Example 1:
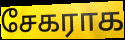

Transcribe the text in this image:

சேகராக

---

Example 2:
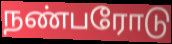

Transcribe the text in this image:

நண்பரோடு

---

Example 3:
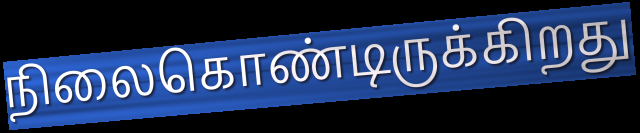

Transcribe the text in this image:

நிலைகொண்டிருக்கிறது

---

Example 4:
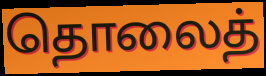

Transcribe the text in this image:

தொலைத்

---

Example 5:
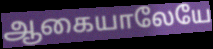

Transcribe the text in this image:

ஆகையாலேயே